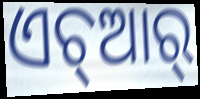
ଏଚ୍ଆର୍